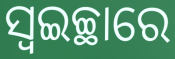
ସ୍ୱଇଚ୍ଛାରେ